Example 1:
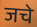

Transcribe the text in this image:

जचे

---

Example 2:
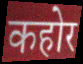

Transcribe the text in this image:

कहोर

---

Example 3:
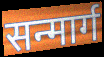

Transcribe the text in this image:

सन्मार्ग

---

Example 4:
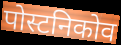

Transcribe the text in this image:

पोस्टनिकोव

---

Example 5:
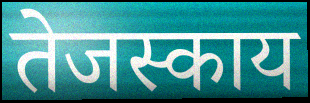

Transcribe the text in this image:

तेजस्काय